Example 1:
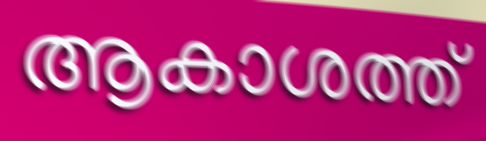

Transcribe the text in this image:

ആകാശത്ത്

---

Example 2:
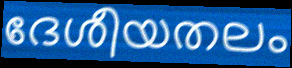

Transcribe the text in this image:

ദേശീയതലം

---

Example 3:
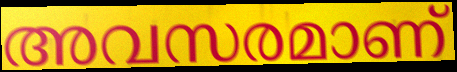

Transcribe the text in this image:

അവസരമാണ്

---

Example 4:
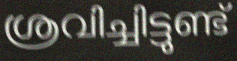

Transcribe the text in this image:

ശ്രവിച്ചിട്ടുണ്ട്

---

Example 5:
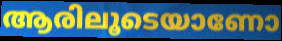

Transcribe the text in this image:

ആരിലൂടെയാണോ